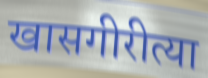
खासगीरीत्या